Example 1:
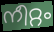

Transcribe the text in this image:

നീറ്റം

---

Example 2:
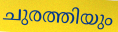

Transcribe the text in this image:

ചുരത്തിയും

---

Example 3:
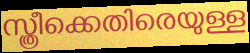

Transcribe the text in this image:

സ്ത്രീക്കെതിരെയുള്ള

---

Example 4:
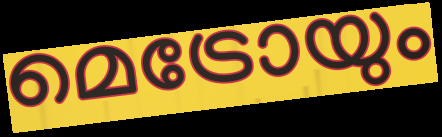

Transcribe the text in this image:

മെട്രോയും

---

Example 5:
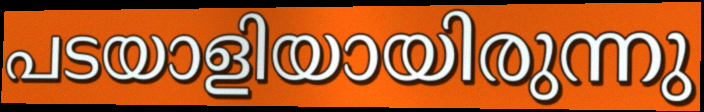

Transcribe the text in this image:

പടയാളിയായിരുന്നു